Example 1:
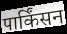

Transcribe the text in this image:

पार्किंसन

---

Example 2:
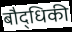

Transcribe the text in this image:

बौद्धिकी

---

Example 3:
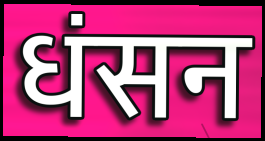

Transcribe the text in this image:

धंसन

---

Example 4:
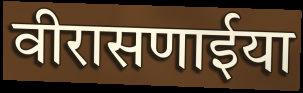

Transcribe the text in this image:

वीरासणाईया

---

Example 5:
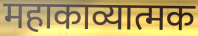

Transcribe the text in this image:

महाकाव्यात्मक